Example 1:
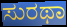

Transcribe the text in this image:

ಸುರಥಾ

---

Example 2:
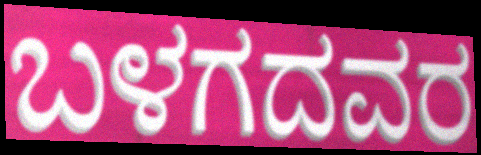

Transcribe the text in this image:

ಬಳಗದವರ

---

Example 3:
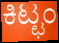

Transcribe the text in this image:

ಕಿಟ್ಟಂ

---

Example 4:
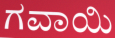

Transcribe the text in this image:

ಗವಾಯಿ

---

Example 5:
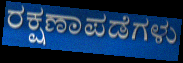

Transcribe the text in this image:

ರಕ್ಷಣಾಪಡೆಗಳು